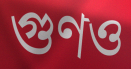
গুণও